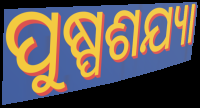
ପୁଷ୍ପଶଯ୍ୟା